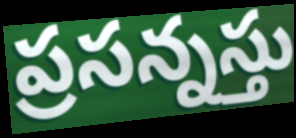
ప్రసన్నస్తు